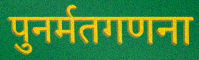
पुनर्मतगणना